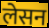
लेसन